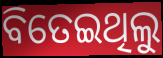
ବିତେଇଥିଲୁ